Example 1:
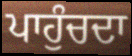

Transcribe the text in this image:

ਪਾਹੁੰਚਦਾ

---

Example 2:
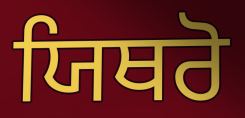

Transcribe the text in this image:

ਯਿਥਰੋ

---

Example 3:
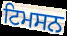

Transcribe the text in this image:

ਟਿਮਸਨ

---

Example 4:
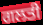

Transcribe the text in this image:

ਗਲਤੀ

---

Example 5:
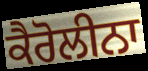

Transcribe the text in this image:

ਕੈਰੋਲੀਨਾ